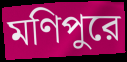
মণিপুরে